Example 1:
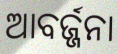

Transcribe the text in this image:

ଆବର୍ଜ୍ଜନା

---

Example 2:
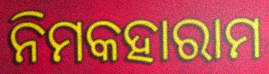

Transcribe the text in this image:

ନିମକହାରାମ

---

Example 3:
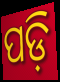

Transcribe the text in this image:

ପଡ଼ି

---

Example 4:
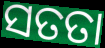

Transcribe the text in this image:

ସତତା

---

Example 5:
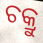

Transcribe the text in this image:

ଚକ୍ରୁ